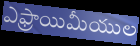
ఎఫ్రాయిమీయుల